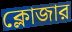
ক্লোজার